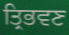
ਤ੍ਰਿਭਵਣ